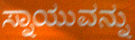
ಸ್ನಾಯುವನ್ನು